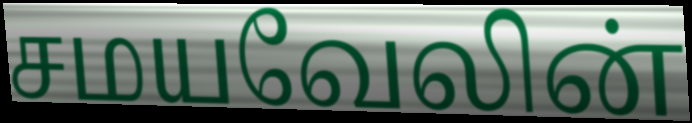
சமயவேலின்